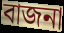
বাজনা